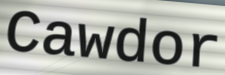
Cawdor